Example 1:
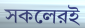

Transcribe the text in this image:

সকলেরই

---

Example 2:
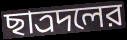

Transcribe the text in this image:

ছাত্রদলের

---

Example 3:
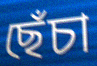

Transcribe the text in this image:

ছেঁচা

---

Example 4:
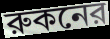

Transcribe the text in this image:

রুকনের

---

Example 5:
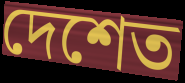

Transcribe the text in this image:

দেশেত